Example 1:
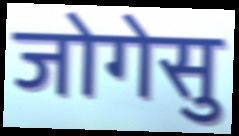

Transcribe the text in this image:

जोगेसु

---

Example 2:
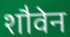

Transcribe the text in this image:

शौवेन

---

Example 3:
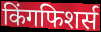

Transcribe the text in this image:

किंगफिशर्स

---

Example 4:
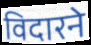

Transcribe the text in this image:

विदारने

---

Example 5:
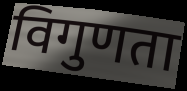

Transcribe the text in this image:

विगुणता